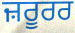
ਜ਼ਰੂਰਰ